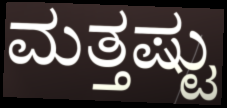
ಮತ್ತಷ್ಟು